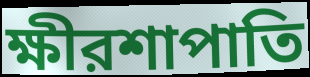
ক্ষীরশাপাতি